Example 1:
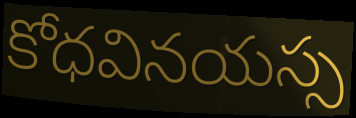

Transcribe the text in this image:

కోధవినయస్స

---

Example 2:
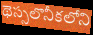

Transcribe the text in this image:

థెస్సలొనీకలోని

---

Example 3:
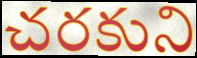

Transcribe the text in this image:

చరకుని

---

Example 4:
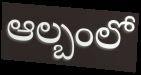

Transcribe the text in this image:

ఆల్బంలో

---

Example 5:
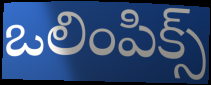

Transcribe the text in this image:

ఒలింపిక్స్